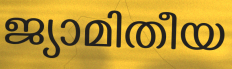
ജ്യാമിതീയ